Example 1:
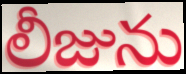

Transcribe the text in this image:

లీజును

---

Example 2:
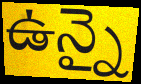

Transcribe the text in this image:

ఉన్నై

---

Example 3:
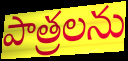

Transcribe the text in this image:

పాత్రలను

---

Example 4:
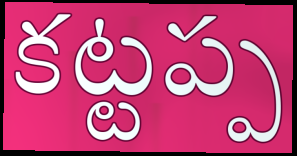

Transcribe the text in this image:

కట్టప్ప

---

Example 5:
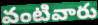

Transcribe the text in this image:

వంటివారు